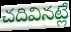
చదివినట్లే